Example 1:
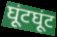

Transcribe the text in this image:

घूंटघूंट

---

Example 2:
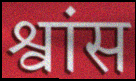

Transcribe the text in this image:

श्वांस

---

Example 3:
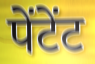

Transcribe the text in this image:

पेंटेंट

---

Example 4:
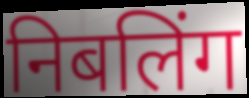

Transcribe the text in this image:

निबलिंग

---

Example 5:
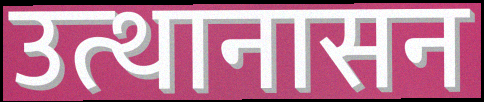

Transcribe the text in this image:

उत्थानासन